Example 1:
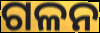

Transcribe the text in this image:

ଗଳନ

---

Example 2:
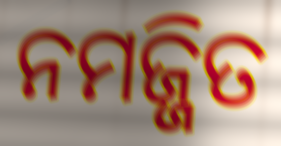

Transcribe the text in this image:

ନମଜ୍ଜିତ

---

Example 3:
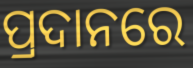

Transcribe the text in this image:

ପ୍ରଦାନରେ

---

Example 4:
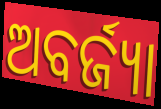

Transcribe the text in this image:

ଅବର୍ଜ୍ୟା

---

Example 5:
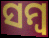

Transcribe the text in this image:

ସମ୍ବ